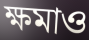
ক্ষমাও